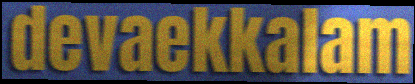
devaekkalam